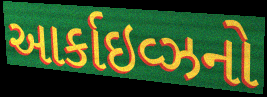
આર્કાઇવ્ઝનો